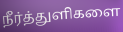
நீர்த்துளிகளை